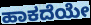
ಹಾಕದೆಯೇ